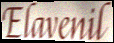
Elavenil